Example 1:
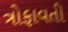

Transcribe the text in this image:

ત્રોફાવતી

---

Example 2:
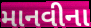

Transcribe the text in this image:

માનવીના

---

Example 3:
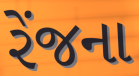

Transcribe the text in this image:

રેંજના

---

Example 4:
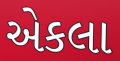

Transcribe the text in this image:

એકલા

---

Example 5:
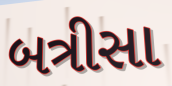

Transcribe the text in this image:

બત્રીસા